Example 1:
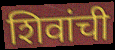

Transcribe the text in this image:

शिवांची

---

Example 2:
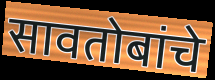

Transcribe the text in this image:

सावतोबांचे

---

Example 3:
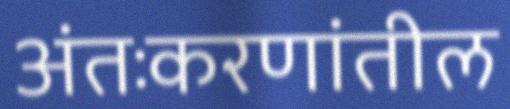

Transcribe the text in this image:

अंतःकरणांतील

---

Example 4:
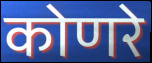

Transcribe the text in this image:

कोणरे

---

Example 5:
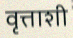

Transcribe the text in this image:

वृत्ताशी